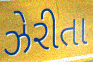
ઝેરીતા